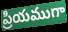
ప్రియముగా